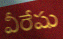
వీరేషు